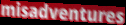
misadventures